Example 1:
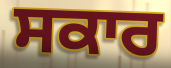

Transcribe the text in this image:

ਸਕਾਰ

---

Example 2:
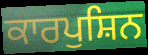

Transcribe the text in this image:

ਕਾਰਪੁਸ਼ਿਨ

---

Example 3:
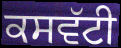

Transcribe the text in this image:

ਕਸਵੱਟੀ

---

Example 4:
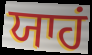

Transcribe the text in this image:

ਯਾਹਂ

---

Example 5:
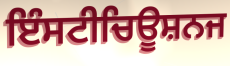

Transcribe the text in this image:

ਇੰਸਟੀਚਿਊਸ਼ਨਜ